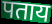
पताय